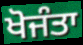
ਖੋਜੰਤਾ